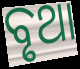
ବୃଥା